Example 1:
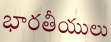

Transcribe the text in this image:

భారతీయులు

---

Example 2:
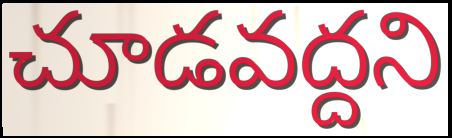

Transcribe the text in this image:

చూడవద్దని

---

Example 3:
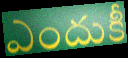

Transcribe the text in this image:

ఎందుకీ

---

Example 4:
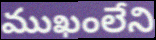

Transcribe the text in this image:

ముఖంలేని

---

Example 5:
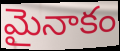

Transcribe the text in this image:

మైనాకం